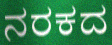
ನರಕದ